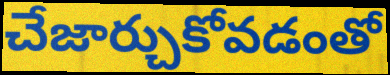
చేజార్చుకోవడంతో